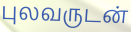
புலவருடன்